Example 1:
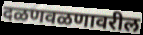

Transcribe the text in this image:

दळणवळणावरील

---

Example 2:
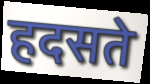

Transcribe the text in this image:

हदसते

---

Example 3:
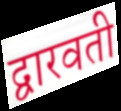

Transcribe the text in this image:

द्वारवती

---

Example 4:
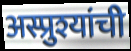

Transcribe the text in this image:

अस्प्रुश्यांची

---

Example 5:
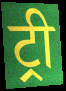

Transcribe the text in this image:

ट्री